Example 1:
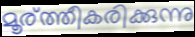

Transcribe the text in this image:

മൂര്ത്തീകരിക്കുന്നു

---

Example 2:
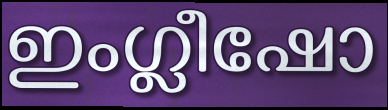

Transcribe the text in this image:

ഇംഗ്ലീഷോ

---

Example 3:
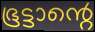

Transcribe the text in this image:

ഭൂട്ടാന്റെ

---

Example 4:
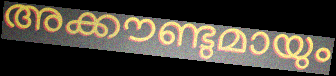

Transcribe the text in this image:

അക്കൗണ്ടുമായും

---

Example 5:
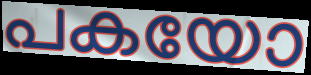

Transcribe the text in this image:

പകയോ